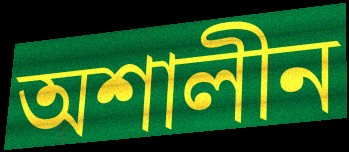
অশালীন